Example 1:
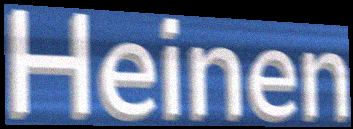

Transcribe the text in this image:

Heinen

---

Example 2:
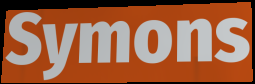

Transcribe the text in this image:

Symons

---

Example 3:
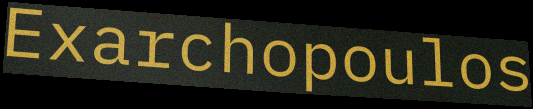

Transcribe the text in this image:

Exarchopoulos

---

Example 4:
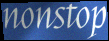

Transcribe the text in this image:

nonstop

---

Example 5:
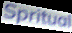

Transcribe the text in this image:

Spritual